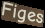
Figes